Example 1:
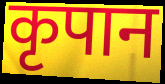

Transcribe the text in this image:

कृपान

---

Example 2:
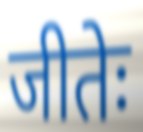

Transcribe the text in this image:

जीतेः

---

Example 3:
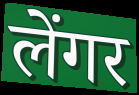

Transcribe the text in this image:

लेंगर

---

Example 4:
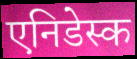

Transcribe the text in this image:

एनिडेस्क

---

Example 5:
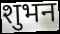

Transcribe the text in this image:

शुभन